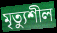
মৃত্যুশীল